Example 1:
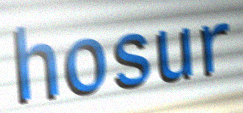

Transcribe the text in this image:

hosur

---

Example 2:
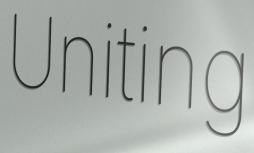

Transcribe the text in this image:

Uniting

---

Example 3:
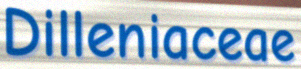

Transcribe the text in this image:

Dilleniaceae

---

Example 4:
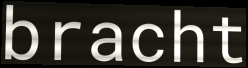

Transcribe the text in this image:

bracht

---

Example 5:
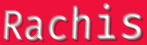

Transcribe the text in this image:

Rachis